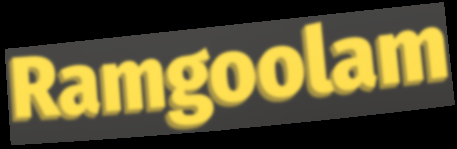
Ramgoolam